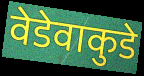
वेडेवाकुडे